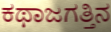
ಕಥಾಜಗತ್ತಿನ